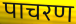
पाचरण